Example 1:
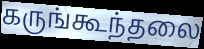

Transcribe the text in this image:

கருங்கூந்தலை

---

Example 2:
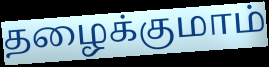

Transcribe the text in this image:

தழைக்குமாம்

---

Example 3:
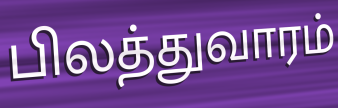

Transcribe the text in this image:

பிலத்துவாரம்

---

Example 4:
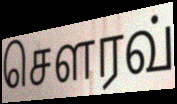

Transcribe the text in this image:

சௌரவ்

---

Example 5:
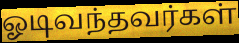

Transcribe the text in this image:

ஓடிவந்தவர்கள்